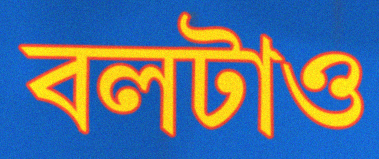
বলটাও